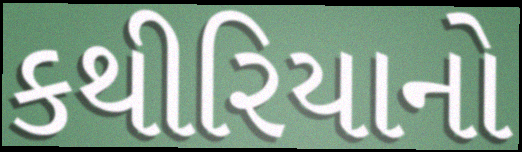
કથીરિયાનો